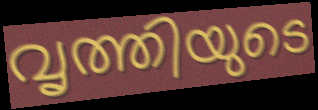
വൃത്തിയുടെ